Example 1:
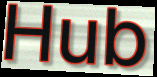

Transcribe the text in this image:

Hub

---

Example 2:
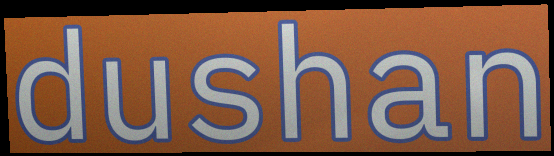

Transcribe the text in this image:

dushan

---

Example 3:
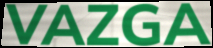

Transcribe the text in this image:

VAZGA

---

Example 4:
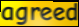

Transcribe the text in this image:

agreed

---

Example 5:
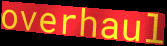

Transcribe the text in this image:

overhaul